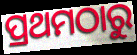
ପ୍ରଥମଠାରୁ